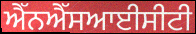
ਐੱਨਐੱਸਆਈਸੀਟੀ